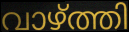
വാഴ്ത്തി